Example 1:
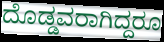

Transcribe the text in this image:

ದೊಡ್ಡವರಾಗಿದ್ದರೂ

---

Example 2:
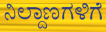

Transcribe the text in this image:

ನಿಲ್ದಾಣಗಳಿಗೆ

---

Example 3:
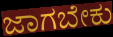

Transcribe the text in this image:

ಜಾಗಬೇಕು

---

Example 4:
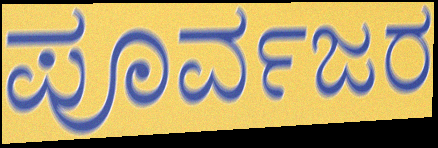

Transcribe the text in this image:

ಪೂರ್ವಜರ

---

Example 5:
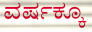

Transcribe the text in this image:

ವರ್ಷಕ್ಕೂ